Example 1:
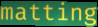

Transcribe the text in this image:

matting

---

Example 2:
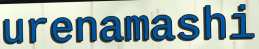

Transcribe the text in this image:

urenamashi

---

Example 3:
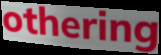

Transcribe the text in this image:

othering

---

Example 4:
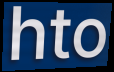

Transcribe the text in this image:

hto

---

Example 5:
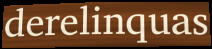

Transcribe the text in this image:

derelinquas